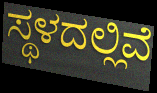
ಸ್ಥಳದಲ್ಲಿವೆ